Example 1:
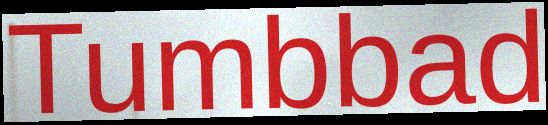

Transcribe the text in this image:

Tumbbad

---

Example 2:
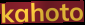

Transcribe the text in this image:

kahoto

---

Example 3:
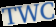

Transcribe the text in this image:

TWC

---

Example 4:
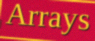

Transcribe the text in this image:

Arrays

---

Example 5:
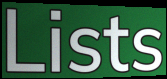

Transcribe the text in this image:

Lists